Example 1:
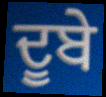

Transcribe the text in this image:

ਦੂਬੇ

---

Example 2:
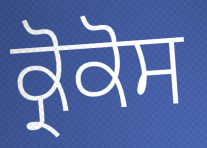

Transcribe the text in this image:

ਕ੍ਰੋਕੋਸ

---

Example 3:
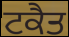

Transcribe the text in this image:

ਟਕੈਤ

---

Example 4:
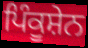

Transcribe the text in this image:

ਪਿੰਕੂਸ਼ੇਨ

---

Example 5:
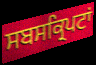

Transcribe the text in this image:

ਸਬਸਕ੍ਰਿਪਟਾਂ